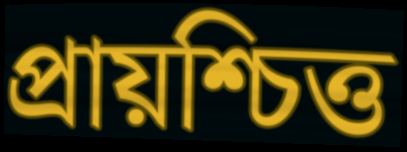
প্ৰায়শ্চিত্ত